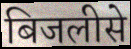
बिजलीसे